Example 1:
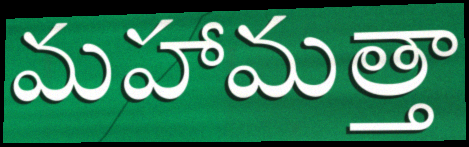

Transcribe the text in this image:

మహామత్తా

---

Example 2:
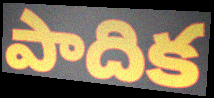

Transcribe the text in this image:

పాదిక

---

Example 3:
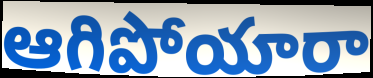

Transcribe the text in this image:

ఆగిపోయారా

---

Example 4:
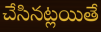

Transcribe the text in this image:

చేసినట్లయితే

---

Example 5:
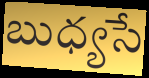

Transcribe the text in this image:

బుధ్యసే